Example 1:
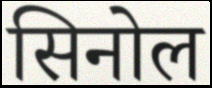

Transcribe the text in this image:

सिनोल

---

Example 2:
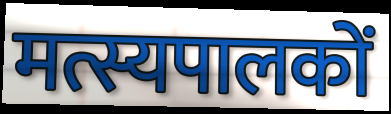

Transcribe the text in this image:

मत्स्यपालकों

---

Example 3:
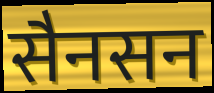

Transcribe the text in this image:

सैनसन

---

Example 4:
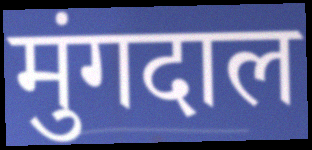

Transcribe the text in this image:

मुंगदाल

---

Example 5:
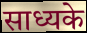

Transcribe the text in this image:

साध्यके